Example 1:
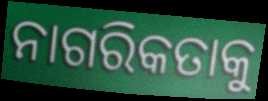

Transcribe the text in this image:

ନାଗରିକତାକୁ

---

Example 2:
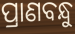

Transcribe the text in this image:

ପ୍ରାଣବନ୍ଧୁ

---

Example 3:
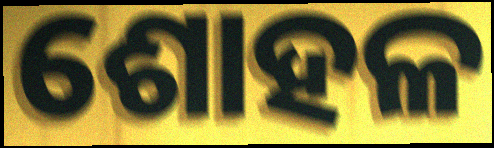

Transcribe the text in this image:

ଶୋହଳ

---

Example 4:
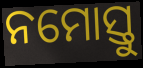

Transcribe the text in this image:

ନମୋସ୍ତୁ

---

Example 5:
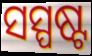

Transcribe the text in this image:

ସସ୍ପଷ୍ଟ